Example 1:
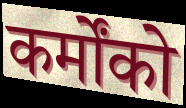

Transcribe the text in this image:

कर्मोंको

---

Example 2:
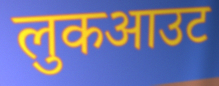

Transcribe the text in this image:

लुकआउट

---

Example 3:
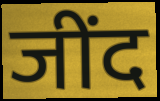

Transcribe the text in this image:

जींद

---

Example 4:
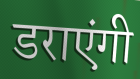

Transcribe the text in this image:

डराएंगी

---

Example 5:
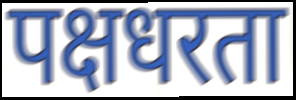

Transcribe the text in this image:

पक्षधरता